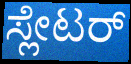
ಸ್ಲೇಟರ್